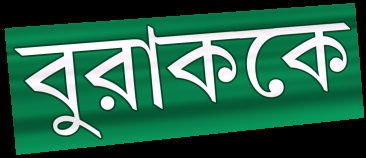
বুরাককে